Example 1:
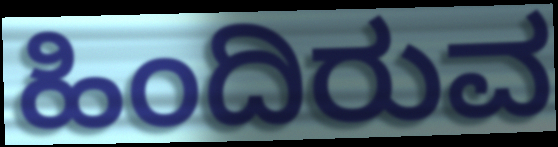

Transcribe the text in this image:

ಹಿಂದಿರುವ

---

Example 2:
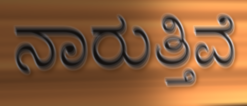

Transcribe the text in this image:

ನಾರುತ್ತಿವೆ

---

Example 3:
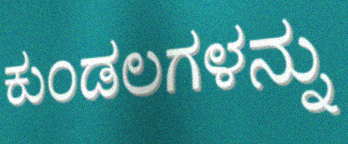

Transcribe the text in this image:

ಕುಂಡಲಗಳನ್ನು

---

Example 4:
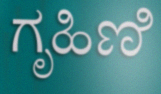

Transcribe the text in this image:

ಗೃಹಿಣಿ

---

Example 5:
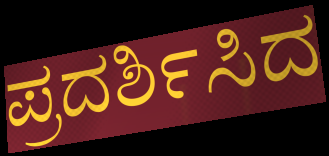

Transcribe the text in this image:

ಪ್ರದರ್ಶಿಸಿದ